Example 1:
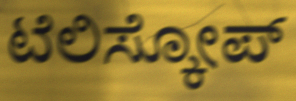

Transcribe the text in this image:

ಟೆಲಿಸ್ಕೋಪ್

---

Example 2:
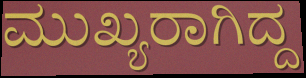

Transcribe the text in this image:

ಮುಖ್ಯರಾಗಿದ್ದ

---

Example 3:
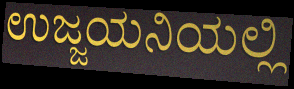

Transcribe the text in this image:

ಉಜ್ಜಯನಿಯಲ್ಲಿ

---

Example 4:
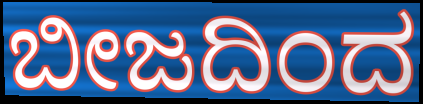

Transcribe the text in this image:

ಬೀಜದಿಂದ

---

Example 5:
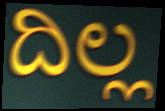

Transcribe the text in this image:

ದಿಲ್ಲ